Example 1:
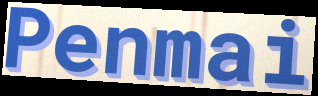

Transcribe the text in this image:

Penmai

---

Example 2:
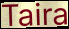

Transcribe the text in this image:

Taira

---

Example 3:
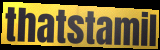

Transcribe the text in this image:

thatstamil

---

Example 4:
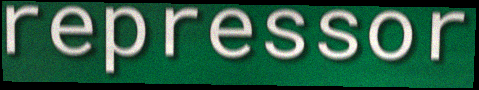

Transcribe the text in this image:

repressor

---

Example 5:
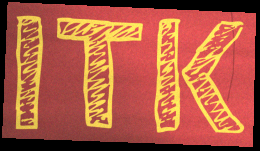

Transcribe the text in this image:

ITK